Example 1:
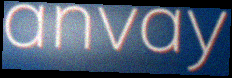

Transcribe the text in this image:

anvay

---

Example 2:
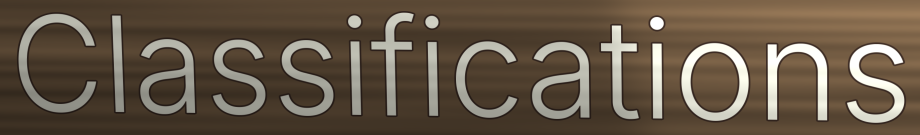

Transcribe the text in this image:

Classifications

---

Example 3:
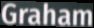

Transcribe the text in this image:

Graham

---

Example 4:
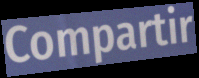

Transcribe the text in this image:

Compartir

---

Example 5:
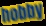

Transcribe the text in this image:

hobby